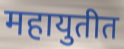
महायुतीत